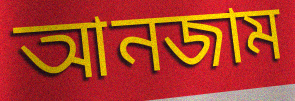
আনজাম